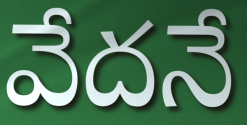
వేదనే